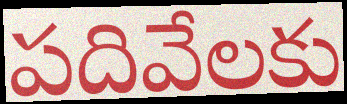
పదివేలకు